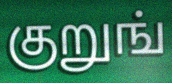
குறுங்